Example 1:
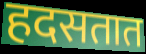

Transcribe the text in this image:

हदसतात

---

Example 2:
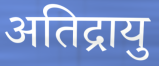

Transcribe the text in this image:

अतिद्रायु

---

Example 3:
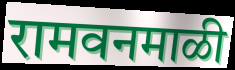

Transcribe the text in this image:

रामवनमाळी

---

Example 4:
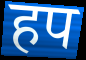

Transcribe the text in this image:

हप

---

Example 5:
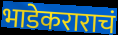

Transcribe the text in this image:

भाडेकराराचं